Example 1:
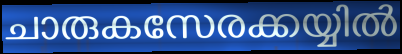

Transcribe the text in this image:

ചാരുകസേരക്കയ്യിൽ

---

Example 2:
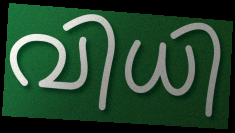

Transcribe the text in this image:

വിധി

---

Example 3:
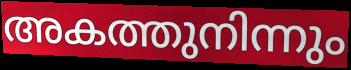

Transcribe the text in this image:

അകത്തുനിന്നും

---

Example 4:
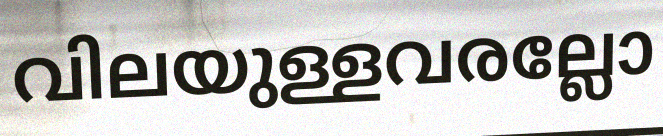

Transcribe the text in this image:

വിലയുള്ളവരല്ലോ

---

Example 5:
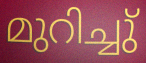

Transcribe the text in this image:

മുറിച്ചു്